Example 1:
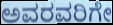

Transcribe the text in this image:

ಅವರವರಿಗೇ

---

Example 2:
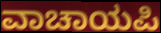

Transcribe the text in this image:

ವಾಚಾಯಪಿ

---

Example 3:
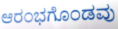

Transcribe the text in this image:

ಆರಂಭಗೊಂಡವು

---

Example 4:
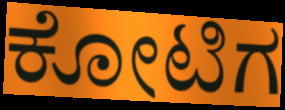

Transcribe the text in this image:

ಕೋಟಿಗ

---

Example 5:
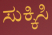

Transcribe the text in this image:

ಸುಕ್ಕಿಸಿ